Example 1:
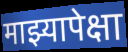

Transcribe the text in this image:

माझ्यापेक्षा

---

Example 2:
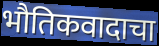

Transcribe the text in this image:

भौतिकवादाचा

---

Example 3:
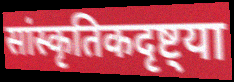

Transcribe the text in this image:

सांस्कृतिकदृष्ट्या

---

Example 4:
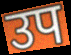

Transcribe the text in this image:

उप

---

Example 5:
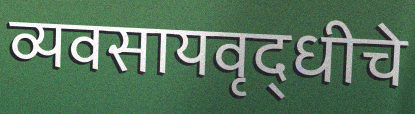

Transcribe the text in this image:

व्यवसायवृद्धीचे